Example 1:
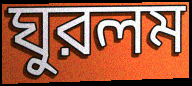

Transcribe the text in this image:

ঘুরলম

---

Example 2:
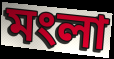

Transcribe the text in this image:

মংলা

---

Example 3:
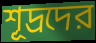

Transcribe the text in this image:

শূদ্রদের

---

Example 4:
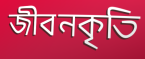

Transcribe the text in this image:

জীবনকৃতি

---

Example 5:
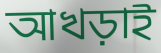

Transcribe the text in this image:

আখড়াই